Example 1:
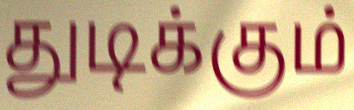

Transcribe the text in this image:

துடிக்கும்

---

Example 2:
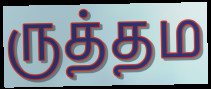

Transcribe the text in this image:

ருத்தம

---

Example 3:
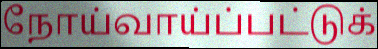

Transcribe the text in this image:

நோய்வாய்ப்பட்டுக்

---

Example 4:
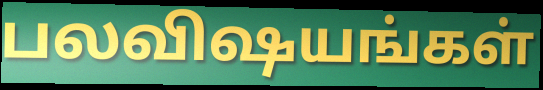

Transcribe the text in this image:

பலவிஷயங்கள்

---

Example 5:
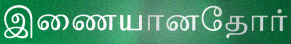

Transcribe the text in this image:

இணையானதோர்